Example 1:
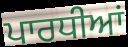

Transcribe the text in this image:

ਪਾਰਧੀਆਂ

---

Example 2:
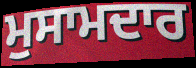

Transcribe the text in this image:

ਮੁਸਾਮਦਾਰ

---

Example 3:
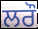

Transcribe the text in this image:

ਲਰੌ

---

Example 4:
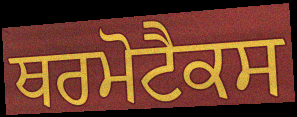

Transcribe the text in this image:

ਥਰਮੋਟੈਕਸ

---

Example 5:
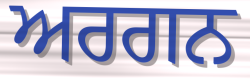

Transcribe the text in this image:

ਅਰਗਨ